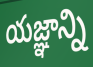
యజ్ఞాన్ని